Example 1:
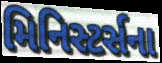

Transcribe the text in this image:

મિનિસ્ટર્સના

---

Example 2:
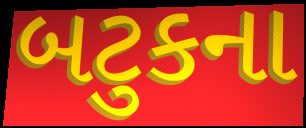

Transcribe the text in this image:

બટુકના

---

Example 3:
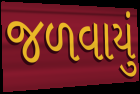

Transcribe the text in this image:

જળવાયું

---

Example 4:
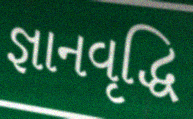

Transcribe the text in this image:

જ્ઞાનવૃદ્ધિ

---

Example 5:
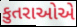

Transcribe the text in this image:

કુતરાઓએ